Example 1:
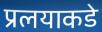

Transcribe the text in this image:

प्रलयाकडे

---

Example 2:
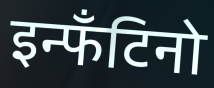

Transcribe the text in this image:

इन्फँटिनो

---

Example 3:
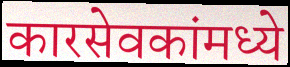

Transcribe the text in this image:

कारसेवकांमध्ये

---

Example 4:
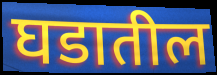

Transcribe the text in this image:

घडातील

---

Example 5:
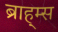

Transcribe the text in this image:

ब्राह्म्स